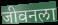
जीवनला